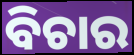
ବିଚାର